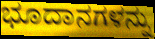
ಭೂದಾನಗಳನ್ನು